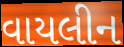
વાયલીન